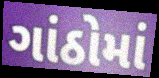
ગાંઠોમાં